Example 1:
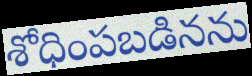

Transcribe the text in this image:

శోధింపబడినను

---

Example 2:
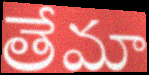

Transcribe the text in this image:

తేమా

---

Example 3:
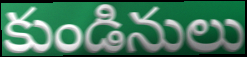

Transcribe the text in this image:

కుండినులు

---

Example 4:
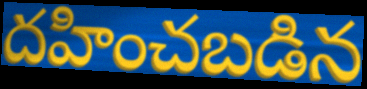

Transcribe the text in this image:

దహించబడిన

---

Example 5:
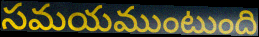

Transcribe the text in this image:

సమయముంటుంది